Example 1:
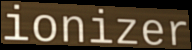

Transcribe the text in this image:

ionizer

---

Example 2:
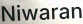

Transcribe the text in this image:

Niwaran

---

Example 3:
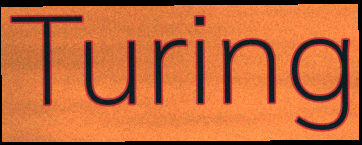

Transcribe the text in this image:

Turing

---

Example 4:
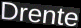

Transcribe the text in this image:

Drente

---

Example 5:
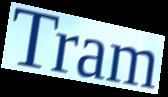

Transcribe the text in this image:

Tram